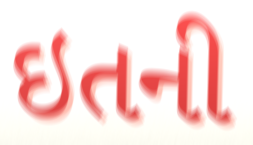
ઇતની